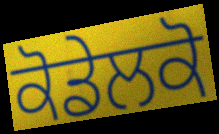
ਕੋਡੇਲਕੋ